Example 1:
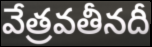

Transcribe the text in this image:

వేత్రవతీనదీ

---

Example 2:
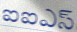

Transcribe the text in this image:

ఐఐఎస్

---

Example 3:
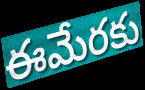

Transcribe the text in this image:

ఈమేరకు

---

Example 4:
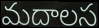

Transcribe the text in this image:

మదాలస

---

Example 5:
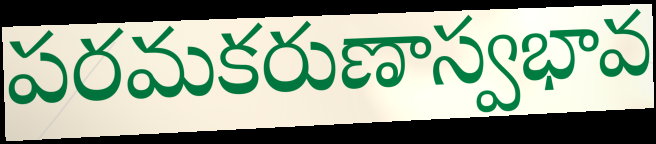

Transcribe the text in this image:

పరమకరుణాస్వభావ